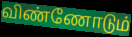
விண்ணோடும்